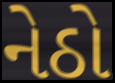
નેઠો